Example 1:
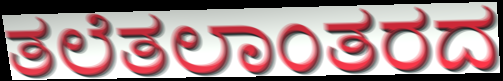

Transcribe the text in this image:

ತಲೆತಲಾಂತರದ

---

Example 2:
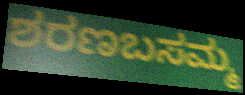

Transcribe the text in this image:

ಶರಣಬಸಮ್ಮ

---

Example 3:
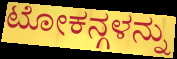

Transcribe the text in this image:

ಟೋಕನ್ಗಳನ್ನು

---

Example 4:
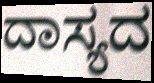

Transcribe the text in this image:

ದಾಸ್ಯದ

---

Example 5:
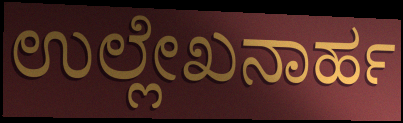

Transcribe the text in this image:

ಉಲ್ಲೇಖನಾರ್ಹ